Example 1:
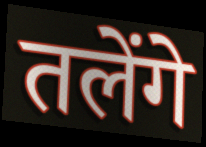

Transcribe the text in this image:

तलेंगे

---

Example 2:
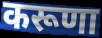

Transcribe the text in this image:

करूणा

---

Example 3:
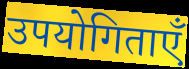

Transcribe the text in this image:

उपयोगिताएँ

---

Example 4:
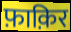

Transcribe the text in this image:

फ़ाक़िर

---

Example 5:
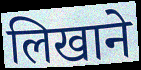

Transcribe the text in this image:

लिखाने